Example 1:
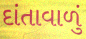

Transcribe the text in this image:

દાંતાવાળું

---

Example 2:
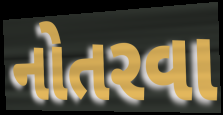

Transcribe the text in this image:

નોતરવા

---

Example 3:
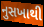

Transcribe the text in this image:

નુસખાથી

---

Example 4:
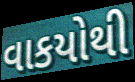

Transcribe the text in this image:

વાકયોથી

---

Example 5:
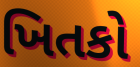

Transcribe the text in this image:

ખિતકો